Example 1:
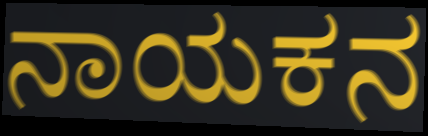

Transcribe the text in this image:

ನಾಯಕನ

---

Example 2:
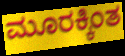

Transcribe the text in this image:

ಮೂರಕ್ಕಿಂತ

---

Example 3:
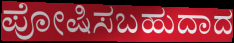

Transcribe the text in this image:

ಪೋಷಿಸಬಹುದಾದ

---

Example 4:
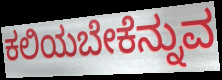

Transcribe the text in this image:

ಕಲಿಯಬೇಕೆನ್ನುವ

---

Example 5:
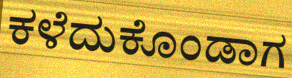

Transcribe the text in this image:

ಕಳೆದುಕೊಂಡಾಗ